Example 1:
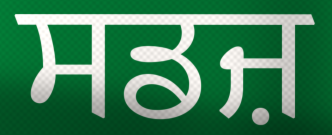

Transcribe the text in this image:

ਸਡਜ਼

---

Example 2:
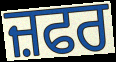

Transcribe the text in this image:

ਜ਼ਫਰ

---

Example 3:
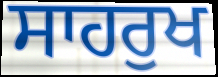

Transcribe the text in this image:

ਸਾਹਰੁਖ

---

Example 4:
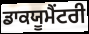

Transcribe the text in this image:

ਡਾਕਯੂਮੈਂਟਰੀ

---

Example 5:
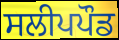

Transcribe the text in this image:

ਸਲੀਪਪੌਡ